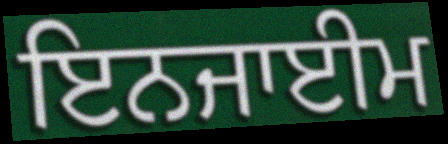
ਇਨਜਾਈਮ